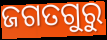
ଜଗତଗୁରୁ